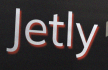
Jetly